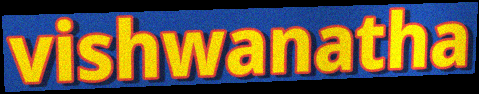
vishwanatha